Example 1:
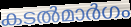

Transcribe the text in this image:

കടൽമാർഗം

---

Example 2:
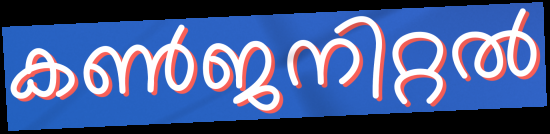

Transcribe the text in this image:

കൺജനിറ്റൽ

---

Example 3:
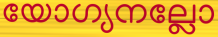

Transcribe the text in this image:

യോഗ്യനല്ലോ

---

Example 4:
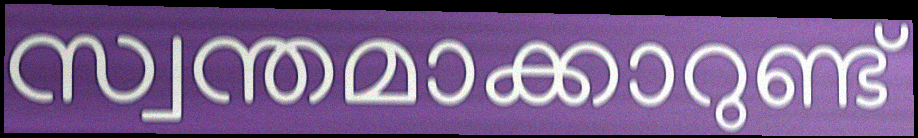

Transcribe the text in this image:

സ്വന്തമാക്കാറുണ്ട്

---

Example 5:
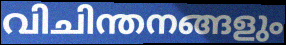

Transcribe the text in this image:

വിചിന്തനങ്ങളും